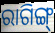
ରାଗିଙ୍ଗ୍